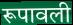
रूपावली